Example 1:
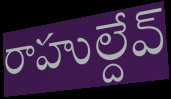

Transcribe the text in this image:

రాహుల్దేవ్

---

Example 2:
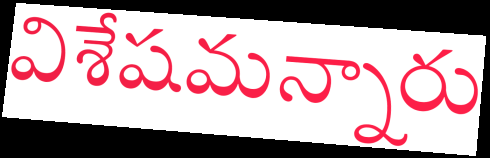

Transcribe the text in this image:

విశేషమన్నారు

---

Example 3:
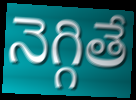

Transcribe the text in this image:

నెగ్గితే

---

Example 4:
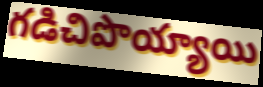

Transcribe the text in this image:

గడిచిపొయ్యాయి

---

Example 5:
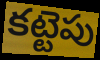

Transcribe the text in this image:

కట్టెపు